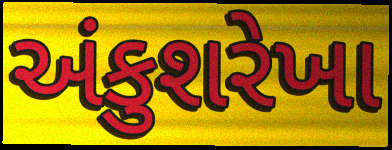
અંકુશરેખા